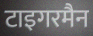
टाइगरमैन